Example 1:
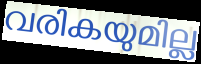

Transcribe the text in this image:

വരികയുമില്ല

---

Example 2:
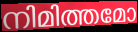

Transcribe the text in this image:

നിമിത്തമോ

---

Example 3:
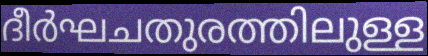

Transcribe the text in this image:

ദീർഘചതുരത്തിലുള്ള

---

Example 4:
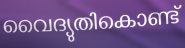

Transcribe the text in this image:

വൈദ്യുതികൊണ്ട്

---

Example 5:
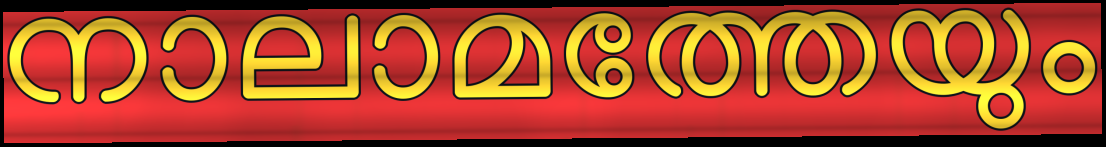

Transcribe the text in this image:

നാലാമത്തേയും